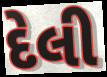
દેલી